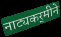
नाट्यकर्मीने